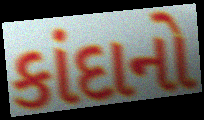
કાંદાનો